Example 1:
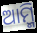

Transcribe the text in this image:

ଆମ୍ମି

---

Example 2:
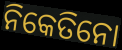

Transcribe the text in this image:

ନିକେତିନୋ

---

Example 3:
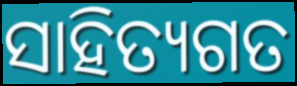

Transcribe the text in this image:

ସାହିତ୍ୟଗତ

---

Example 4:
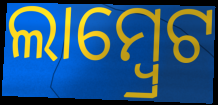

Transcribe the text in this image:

ଲାମ୍ୱ୍ରେଟ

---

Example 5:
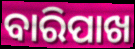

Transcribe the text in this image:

ବାରିପାଖ